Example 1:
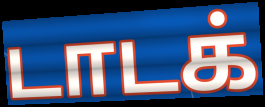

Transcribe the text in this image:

டாடக்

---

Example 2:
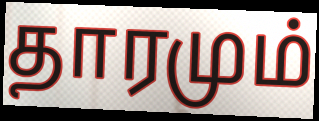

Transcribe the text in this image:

தாரமும்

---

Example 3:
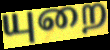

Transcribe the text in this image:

யுறை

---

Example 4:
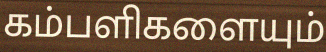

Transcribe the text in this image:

கம்பளிகளையும்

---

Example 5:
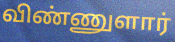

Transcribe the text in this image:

விண்ணுளார்